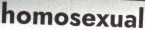
homosexual